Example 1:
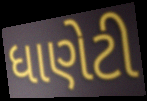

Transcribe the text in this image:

ધાણેટી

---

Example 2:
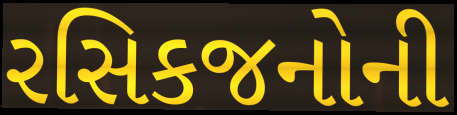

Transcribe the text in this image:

રસિકજનોની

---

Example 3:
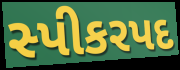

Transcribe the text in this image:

સ્પીકરપદ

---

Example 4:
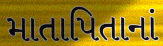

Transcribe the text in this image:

માતાપિતાનાં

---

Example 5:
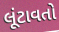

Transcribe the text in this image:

લૂંટાવતો